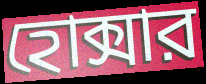
হোক্সার